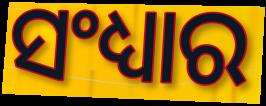
ସଂଧ୍ୟାର